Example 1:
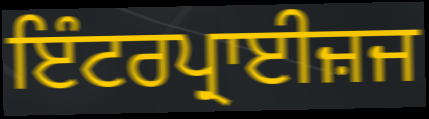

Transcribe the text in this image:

ਇੰਟਰਪ੍ਰਾਈਜ਼ਜ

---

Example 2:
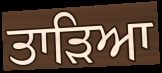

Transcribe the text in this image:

ਤਾੜਿਆ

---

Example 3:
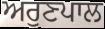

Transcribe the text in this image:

ਅਰੁਣਪਾਲ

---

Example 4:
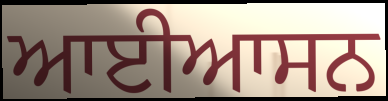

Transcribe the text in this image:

ਆਈਆਸਨ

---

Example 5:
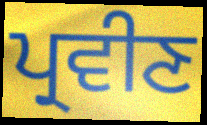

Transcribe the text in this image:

ਪ੍ਰਵੀਣ